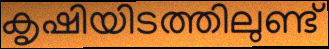
കൃഷിയിടത്തിലുണ്ട്